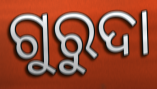
ଗୁରୁଦା